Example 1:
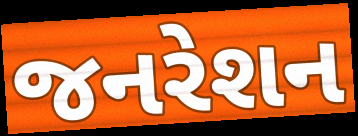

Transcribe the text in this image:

જનરેશન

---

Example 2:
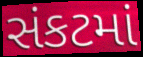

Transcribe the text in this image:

સંકટમાં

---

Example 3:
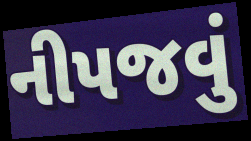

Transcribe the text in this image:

નીપજવું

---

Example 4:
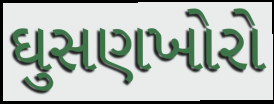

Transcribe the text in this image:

ઘુસણખોરો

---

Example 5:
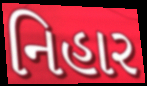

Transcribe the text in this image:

નિહાર